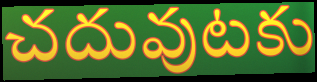
చదువుటకు